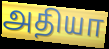
அதியா